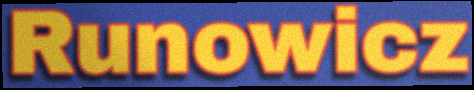
Runowicz